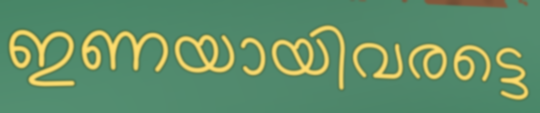
ഇണയായിവരട്ടെ